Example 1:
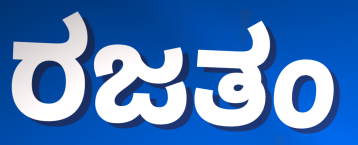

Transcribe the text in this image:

ರಜತಂ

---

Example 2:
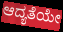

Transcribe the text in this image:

ಆದ್ಯತೆಯೇ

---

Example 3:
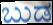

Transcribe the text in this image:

ಬುಡ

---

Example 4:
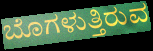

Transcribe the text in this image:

ಬೊಗಳುತ್ತಿರುವ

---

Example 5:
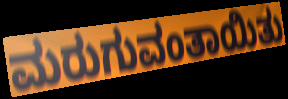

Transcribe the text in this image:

ಮರುಗುವಂತಾಯಿತು